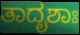
ತಾದೃಶಾಃ